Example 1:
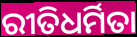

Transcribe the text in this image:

ରୀତିଧର୍ମିତା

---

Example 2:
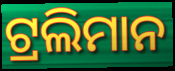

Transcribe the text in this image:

ଟ୍ରଲିମାନ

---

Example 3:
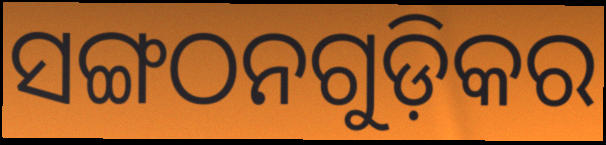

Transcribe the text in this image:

ସଙ୍ଗଠନଗୁଡ଼ିକର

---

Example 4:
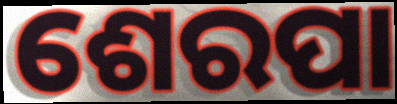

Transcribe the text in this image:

ଶେରପା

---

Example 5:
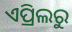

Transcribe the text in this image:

ଏପ୍ରିଲରୁ